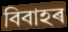
বিবাহৰ